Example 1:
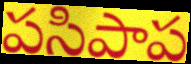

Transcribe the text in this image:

పసిపాప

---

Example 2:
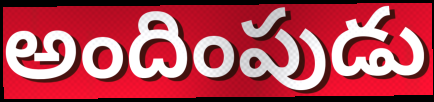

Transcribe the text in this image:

అందింపుడు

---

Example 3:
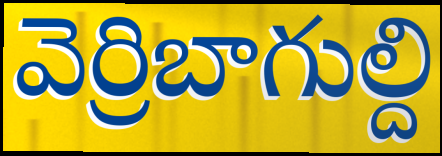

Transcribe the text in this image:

వెర్రిబాగుల్ది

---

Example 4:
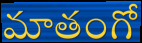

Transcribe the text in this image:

మాతంగో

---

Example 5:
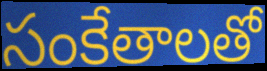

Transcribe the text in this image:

సంకేతాలతో